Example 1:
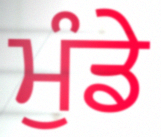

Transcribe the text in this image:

ਮੁੰਡੇ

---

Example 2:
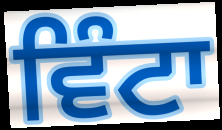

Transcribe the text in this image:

ਵਿੰਟਾ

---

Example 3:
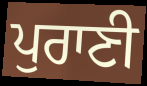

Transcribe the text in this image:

ਪੁਰਾਣੀ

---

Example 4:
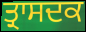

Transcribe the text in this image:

ਤ੍ਰਾਸਦਕ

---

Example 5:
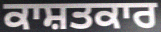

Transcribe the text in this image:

ਕਾਸ਼ਤਕਾਰ